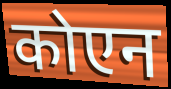
कोएन